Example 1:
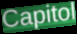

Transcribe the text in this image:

Capitol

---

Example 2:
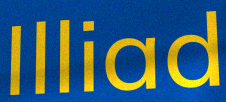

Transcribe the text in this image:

Illiad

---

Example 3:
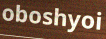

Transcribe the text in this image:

oboshyoi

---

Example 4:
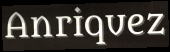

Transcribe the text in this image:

Anriquez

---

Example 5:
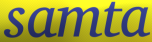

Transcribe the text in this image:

samta